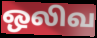
ஒலிவ